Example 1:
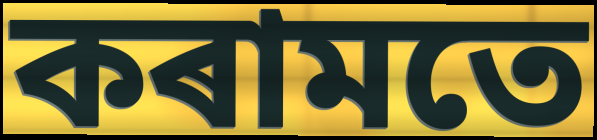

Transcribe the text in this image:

কৰামতে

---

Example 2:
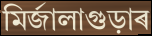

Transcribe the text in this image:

মিৰ্জালাগুড়াৰ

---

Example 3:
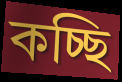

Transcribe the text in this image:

কচ্ছি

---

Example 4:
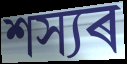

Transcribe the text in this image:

শস্যৰ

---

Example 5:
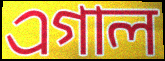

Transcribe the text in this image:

এগাল